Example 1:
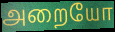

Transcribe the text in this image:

அறையோ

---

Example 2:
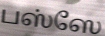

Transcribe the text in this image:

பஸ்ஸே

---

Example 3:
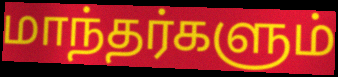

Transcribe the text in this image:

மாந்தர்களும்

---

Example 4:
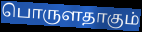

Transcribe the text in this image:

பொருளதாகும்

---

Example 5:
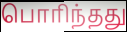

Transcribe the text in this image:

பொரிந்தது